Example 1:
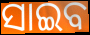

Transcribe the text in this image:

ସାଇବ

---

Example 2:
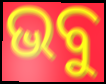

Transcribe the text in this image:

ଭବୁ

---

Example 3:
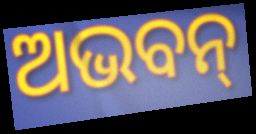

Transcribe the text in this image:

ଅଭବନ୍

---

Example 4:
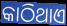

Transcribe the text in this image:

କାଠିଥାଏ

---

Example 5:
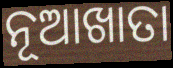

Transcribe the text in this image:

ନୂଆଖାତା